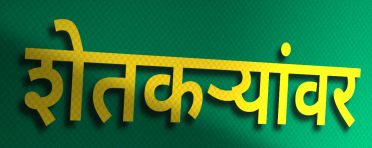
शेतकर्‍यांवर